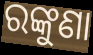
ରଙ୍କୁଣା